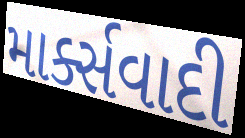
માર્ક્સવાદી